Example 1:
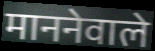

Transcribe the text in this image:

माननेवाले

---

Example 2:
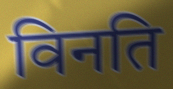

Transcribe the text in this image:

विनति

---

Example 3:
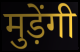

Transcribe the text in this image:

मुड़ेंगी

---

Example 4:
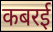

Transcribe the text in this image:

कबरई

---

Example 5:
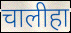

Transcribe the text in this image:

चालीहा